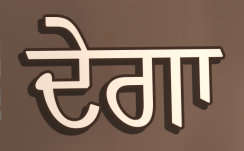
ਦੇਗਾ